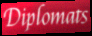
Diplomats